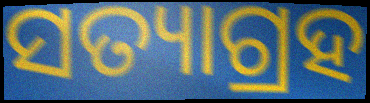
ସତ୍ୟାଗ୍ରହ